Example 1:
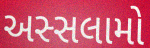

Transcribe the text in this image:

અસ્સલામો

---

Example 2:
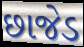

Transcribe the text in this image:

છાજેડ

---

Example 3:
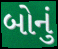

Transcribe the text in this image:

બોનું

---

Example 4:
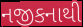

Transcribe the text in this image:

નજીકનાથી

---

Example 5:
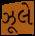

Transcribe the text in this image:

ઝૂલે